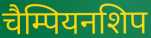
चैम्पियनशिप